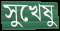
সুখেষু